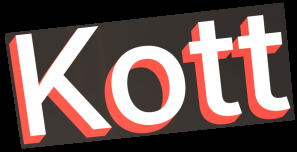
Kott